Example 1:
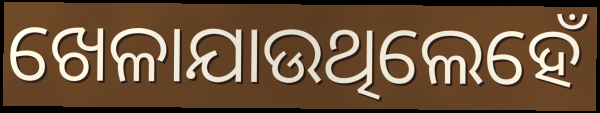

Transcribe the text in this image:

ଖେଳାଯାଉଥିଲେହେଁ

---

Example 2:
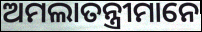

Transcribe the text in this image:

ଅମଲାତନ୍ତ୍ରୀମାନେ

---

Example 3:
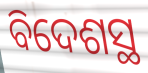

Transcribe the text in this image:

ବିଦେଶସ୍ଥ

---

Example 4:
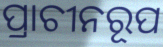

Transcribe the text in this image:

ପ୍ରାଚୀନରୂପ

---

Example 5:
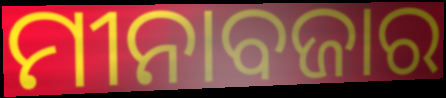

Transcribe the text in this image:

ମୀନାବଜାର